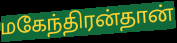
மகேந்திரன்தான்